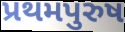
પ્રથમપુરુષ